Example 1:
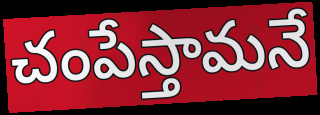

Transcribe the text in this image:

చంపేస్తామనే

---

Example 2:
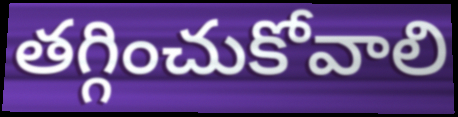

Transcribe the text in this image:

తగ్గించుకోవాలి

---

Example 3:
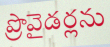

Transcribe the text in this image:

ప్రొవైడర్లను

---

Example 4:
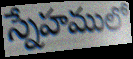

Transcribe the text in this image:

స్నేహములో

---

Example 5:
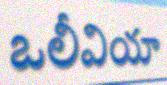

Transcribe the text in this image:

ఒలీవియా